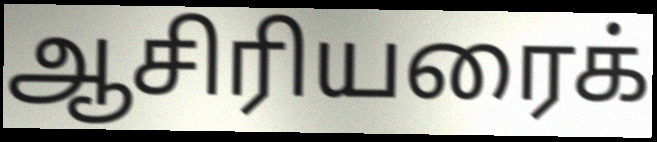
ஆசிரியரைக்